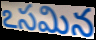
ఽసమిన